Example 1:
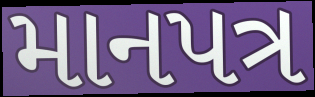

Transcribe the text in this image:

માનપત્ર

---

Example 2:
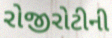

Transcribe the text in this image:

રોજીરોટીની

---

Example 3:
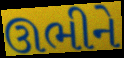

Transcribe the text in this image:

ઊભીને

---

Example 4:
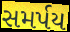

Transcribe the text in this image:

સમર્પય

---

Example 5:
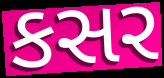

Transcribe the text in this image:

કસર